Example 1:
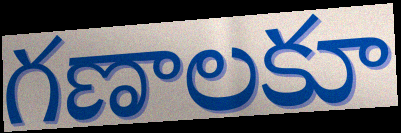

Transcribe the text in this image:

గణాలకూ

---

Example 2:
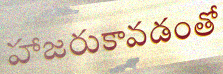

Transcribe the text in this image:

హాజరుకావడంతో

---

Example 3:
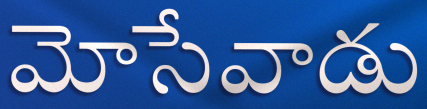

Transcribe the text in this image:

మోసేవాడు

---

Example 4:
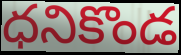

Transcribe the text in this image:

ధనికొండ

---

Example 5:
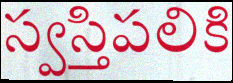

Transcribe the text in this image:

స్వస్తిపలికి